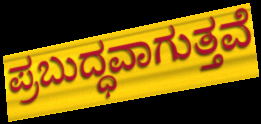
ಪ್ರಬುದ್ಧವಾಗುತ್ತವೆ